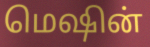
மெஷின்